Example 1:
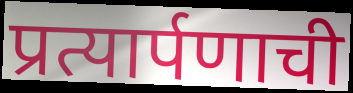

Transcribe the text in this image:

प्रत्यार्पणाची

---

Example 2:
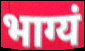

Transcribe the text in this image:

भाग्यं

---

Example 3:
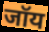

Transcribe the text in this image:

जॉय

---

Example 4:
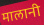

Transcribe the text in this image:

मालानी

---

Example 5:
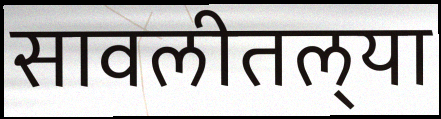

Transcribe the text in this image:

सावलीतल्या